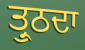
ਤ੍ਰੁਠਦਾ